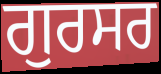
ਗੁਰਸਰ